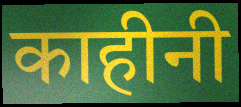
काहीनी